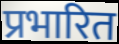
प्रभारित